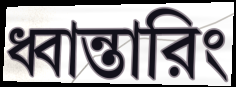
ধ্বান্তারিং